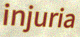
injuria